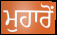
ਮੁਹਾਰੋਂ